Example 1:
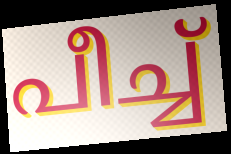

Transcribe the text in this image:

പീച്ച്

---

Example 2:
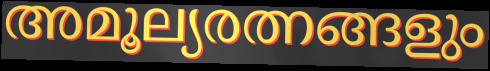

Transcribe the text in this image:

അമൂല്യരത്നങ്ങളും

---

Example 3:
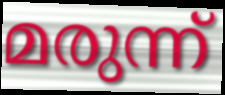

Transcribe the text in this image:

മരുന്ന്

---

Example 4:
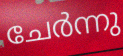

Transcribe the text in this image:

ചേർന്നു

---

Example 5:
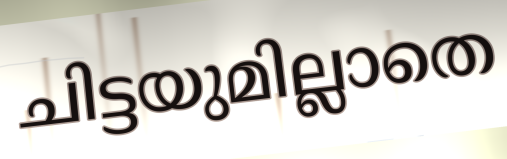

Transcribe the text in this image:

ചിട്ടയുമില്ലാതെ